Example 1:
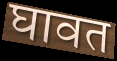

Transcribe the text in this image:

घावत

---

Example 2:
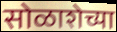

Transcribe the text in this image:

सोळाशेच्या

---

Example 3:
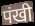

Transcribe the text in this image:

पंखी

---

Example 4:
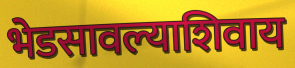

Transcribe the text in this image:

भेडसावल्याशिवाय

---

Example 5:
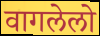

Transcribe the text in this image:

वागलेलो